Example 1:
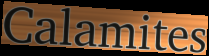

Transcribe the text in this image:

Calamites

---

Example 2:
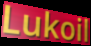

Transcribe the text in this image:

Lukoil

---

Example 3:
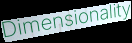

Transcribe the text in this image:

Dimensionality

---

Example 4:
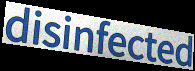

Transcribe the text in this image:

disinfected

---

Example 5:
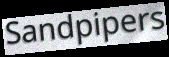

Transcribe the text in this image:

Sandpipers